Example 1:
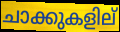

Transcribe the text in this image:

ചാക്കുകളില്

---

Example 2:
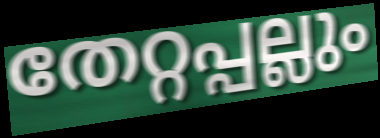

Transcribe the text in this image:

തേറ്റപ്പല്ലും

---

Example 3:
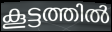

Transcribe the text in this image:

കൂട്ടത്തിൽ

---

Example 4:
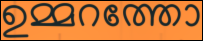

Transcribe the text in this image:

ഉമ്മറത്തോ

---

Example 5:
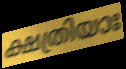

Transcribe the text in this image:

ക്ഷത്രിയാഃ